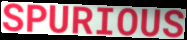
SPURIOUS